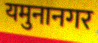
यमुनानगर